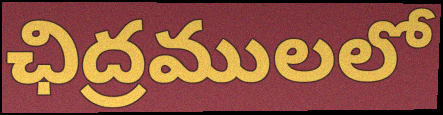
ఛిద్రములలో